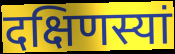
दक्षिणस्यां